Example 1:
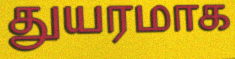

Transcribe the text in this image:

துயரமாக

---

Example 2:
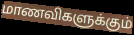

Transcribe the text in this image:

மாணவிகளுக்கும்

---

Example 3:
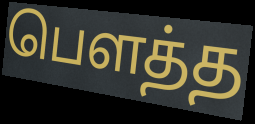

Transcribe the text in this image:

பௌத்த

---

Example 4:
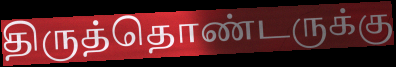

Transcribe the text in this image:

திருத்தொண்டருக்கு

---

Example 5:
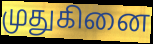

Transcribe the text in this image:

முதுகினை